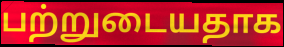
பற்றுடையதாக